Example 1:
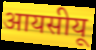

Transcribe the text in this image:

आयसीयू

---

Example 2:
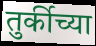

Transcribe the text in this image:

तुर्कीच्या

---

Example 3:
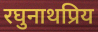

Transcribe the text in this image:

रघुनाथप्रिय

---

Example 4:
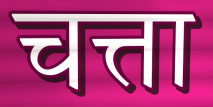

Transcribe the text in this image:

चत्ता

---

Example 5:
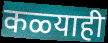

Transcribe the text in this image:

कळ्याही